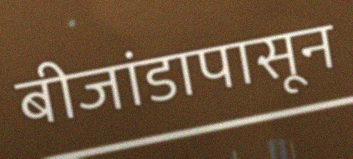
बीजांडापासून